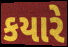
કયારે